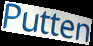
Putten